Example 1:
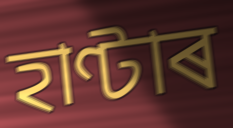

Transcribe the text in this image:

হাণ্টাৰ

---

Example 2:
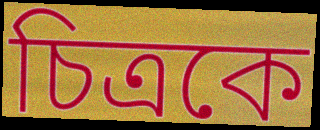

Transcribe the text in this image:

চিত্ৰকে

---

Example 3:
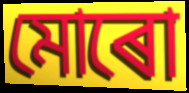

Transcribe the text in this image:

মোৰো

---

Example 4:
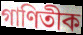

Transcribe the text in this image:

গাণিতীক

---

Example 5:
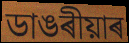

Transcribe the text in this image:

ডাঙৰীয়াৰ